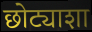
छोट्याशा